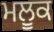
ਮਲੂਕ